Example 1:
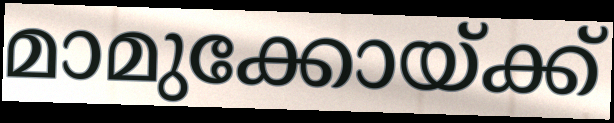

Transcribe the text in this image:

മാമുക്കോയ്ക്ക്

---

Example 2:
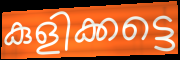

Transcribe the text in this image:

കുളിക്കട്ടെ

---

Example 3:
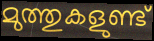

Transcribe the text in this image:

മുത്തുകളുണ്ട്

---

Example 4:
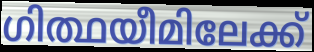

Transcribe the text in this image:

ഗിത്ഥയീമിലേക്ക്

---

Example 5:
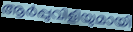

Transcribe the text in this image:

ആർപ്പുവിളിയുമായി